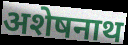
अशेषनाथ